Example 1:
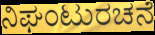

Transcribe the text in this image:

ನಿಘಂಟುರಚನೆ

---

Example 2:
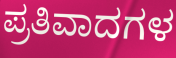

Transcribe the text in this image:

ಪ್ರತಿವಾದಗಳ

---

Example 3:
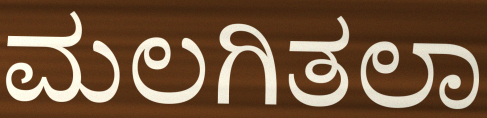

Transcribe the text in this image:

ಮಲಗಿತಲಾ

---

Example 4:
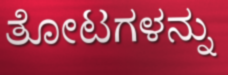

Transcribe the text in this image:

ತೋಟಗಳನ್ನು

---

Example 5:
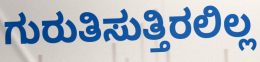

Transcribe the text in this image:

ಗುರುತಿಸುತ್ತಿರಲಿಲ್ಲ